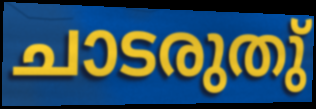
ചാടരുതു്